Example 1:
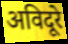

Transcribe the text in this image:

अविदूरे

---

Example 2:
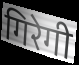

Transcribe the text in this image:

गिरेगी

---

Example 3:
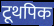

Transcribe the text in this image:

टूथपिक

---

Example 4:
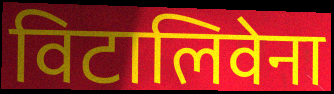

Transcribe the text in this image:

विटालिवेना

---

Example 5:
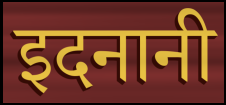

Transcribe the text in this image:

इदनानी